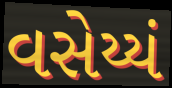
વસેય્યં